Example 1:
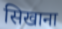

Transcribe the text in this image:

सिखाना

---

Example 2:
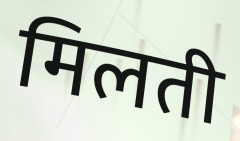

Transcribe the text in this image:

मिलती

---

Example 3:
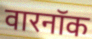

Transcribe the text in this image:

वारनॉक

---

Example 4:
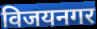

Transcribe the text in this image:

विजयनगर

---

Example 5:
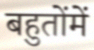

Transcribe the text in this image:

बहुतोंमें